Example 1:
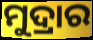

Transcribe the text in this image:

ମୁଦ୍ରାର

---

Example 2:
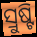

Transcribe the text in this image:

ସ୍ରୁଷ୍ଟି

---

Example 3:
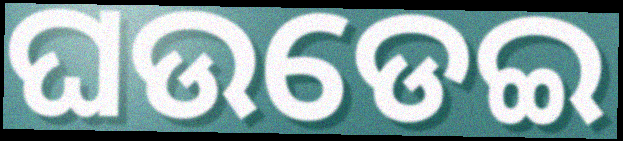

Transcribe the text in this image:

ଘଉଡେଇ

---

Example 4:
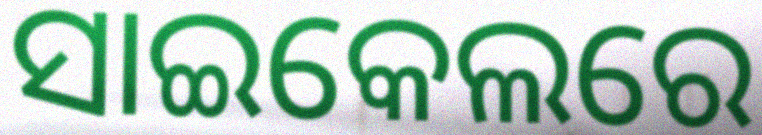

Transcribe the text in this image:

ସାଇକେଲରେ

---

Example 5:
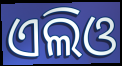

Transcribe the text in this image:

ଏଲିଓ